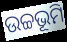
ଉଚ୍ଚଭୂମି